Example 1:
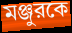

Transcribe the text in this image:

মঞ্জুরকে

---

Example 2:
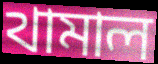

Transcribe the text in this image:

থামাল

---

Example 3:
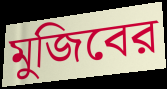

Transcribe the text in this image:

মুজিবের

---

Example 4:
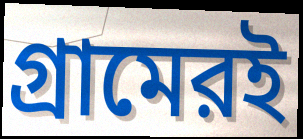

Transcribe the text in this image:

গ্রামেরই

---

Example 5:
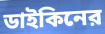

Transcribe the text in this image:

ডাইকিনের